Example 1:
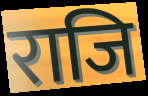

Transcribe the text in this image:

राजि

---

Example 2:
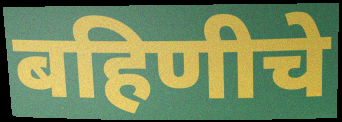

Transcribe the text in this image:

बहिणीचे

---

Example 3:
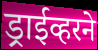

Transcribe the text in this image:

ड्राईव्हरने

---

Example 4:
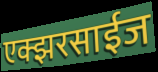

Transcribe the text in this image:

एक्झरसाईज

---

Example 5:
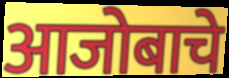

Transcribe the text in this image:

आजोबाचे